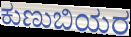
ಕುಣುಬಿಯರ